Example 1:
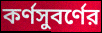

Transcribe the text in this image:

কর্ণসুবর্ণের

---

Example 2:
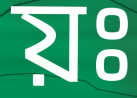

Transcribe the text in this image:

য়ঃ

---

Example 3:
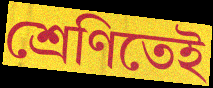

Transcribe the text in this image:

শ্রেণিতেই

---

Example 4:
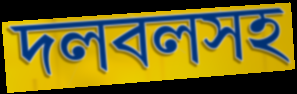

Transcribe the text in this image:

দলবলসহ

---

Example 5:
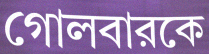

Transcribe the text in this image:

গোলবারকে